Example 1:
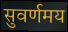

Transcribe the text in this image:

सुवर्णमय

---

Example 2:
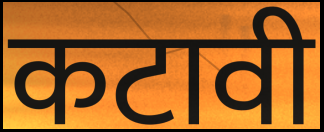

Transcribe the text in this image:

कटावी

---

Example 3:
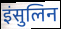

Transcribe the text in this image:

इंसुलिन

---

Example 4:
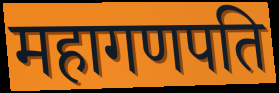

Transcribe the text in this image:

महागणपति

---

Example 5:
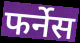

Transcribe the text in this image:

फर्नेस